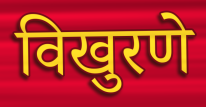
विखुरणे